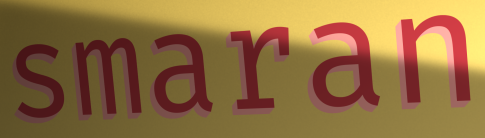
smaran